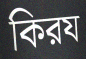
কিরয